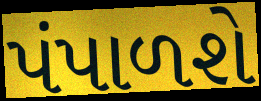
પંપાળશે